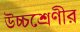
উচ্চশ্রেণীর